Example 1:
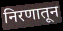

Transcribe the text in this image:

निरणातून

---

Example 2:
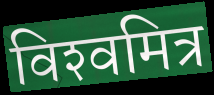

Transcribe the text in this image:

विश्वमित्र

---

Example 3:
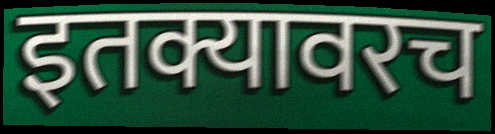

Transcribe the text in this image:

इतक्यावरच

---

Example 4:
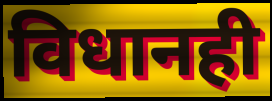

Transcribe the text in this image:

विधानही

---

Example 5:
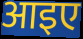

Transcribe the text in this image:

आइए